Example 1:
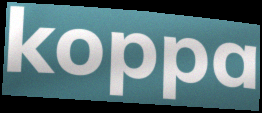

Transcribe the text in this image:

koppa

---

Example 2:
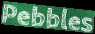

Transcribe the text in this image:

Pebbles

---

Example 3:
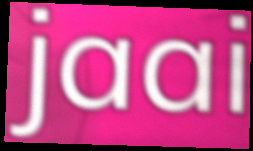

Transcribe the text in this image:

jaai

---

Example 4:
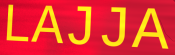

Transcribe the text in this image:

LAJJA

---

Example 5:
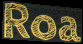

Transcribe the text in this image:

Roa